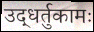
उद्धर्तुकामः